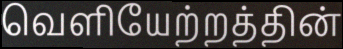
வெளியேற்றத்தின்